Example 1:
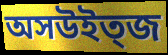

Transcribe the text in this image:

অসউইত্জ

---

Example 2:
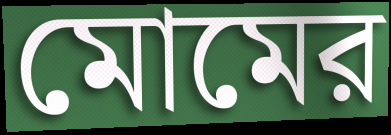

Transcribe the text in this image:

মোমের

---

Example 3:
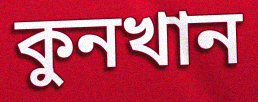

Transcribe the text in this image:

কুনখান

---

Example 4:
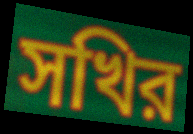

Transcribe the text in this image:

সখির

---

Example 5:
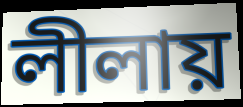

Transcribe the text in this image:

লীলায়